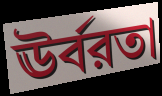
ঊর্বরতা